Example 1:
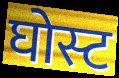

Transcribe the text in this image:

घोस्‍ट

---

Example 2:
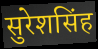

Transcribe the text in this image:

सुरेशसिंह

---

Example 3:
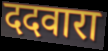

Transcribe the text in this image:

ददवारा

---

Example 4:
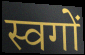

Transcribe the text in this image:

स्वगों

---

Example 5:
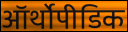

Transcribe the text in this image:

ऑर्थोपीडिक